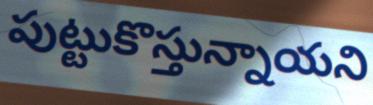
పుట్టుకొస్తున్నాయని